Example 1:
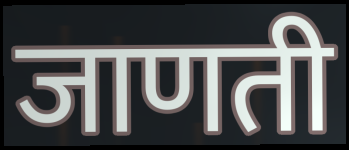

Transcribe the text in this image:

जाणती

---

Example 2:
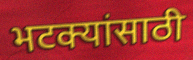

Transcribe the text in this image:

भटक्यांसाठी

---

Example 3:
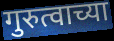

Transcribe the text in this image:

गुरुत्वाच्या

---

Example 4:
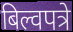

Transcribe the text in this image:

बिल्वपत्रे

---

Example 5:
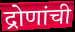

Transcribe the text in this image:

द्रोणांची